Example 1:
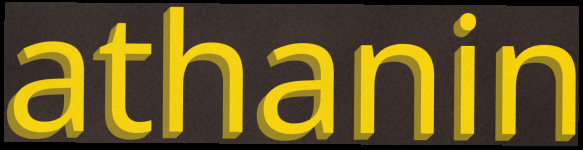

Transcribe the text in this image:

athanin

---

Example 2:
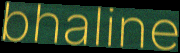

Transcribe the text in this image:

bhaline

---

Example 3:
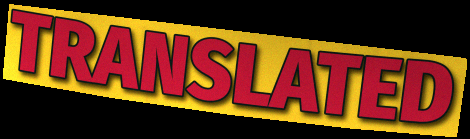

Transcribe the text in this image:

TRANSLATED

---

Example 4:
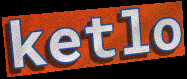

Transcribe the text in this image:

ketlo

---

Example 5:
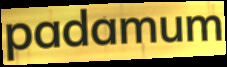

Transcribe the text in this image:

padamum